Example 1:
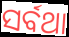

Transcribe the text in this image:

ସର୍ବଥା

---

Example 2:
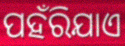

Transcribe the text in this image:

ପହଁରିଯାଏ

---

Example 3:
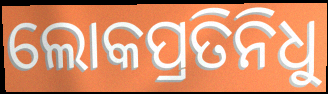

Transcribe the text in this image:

ଲୋକପ୍ରତିନିଧୁ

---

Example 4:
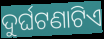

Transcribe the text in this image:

ଦୁର୍ଘଟଣାଟିଏ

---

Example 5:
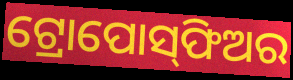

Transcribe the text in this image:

ଟ୍ରୋପୋସ୍‌ଫିଅର